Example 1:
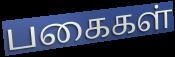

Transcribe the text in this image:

பகைகள்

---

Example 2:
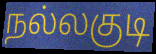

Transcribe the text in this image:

நல்லகுடி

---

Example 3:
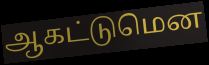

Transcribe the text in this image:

ஆகட்டுமென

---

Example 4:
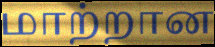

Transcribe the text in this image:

மாற்றான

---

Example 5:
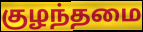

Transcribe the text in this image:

குழந்தமை